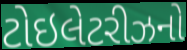
ટોઇલેટરીઝનો